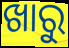
ଖାରୁ